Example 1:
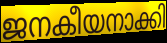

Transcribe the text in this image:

ജനകീയനാക്കി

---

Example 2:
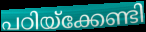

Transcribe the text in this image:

പഠിയ്ക്കേണ്ടി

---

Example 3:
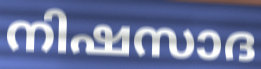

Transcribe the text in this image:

നിഷസാദ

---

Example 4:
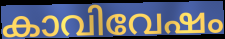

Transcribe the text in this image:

കാവിവേഷം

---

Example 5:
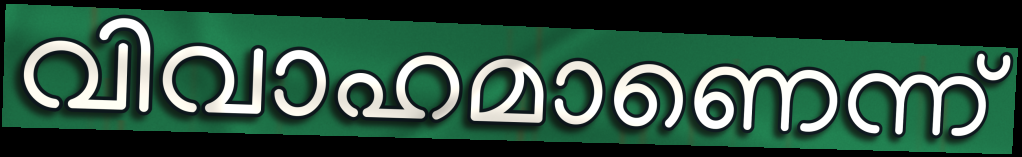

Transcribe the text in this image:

വിവാഹമാണെന്ന്